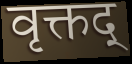
वृक्तद्